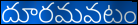
దూరమవటం